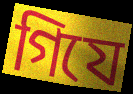
গিযে